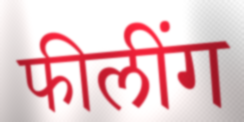
फीलींग